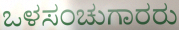
ಒಳಸಂಚುಗಾರರು